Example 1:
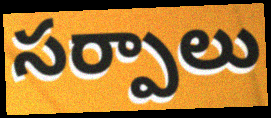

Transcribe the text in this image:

సర్పాలు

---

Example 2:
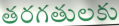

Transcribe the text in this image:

తరగతులకు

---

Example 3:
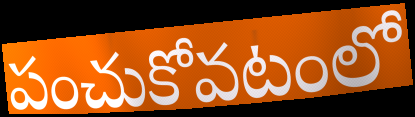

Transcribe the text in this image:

పంచుకోవటంలో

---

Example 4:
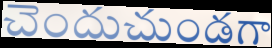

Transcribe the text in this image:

చెందుచుండగా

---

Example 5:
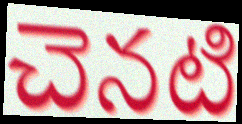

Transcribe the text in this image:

చెనటి